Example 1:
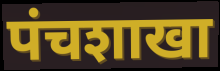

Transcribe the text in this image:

पंचशाखा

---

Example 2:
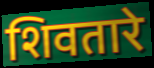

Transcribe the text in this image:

शिवतारे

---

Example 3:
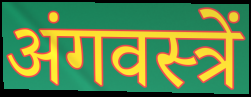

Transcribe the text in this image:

अंगवस्त्रें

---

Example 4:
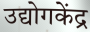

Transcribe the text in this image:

उद्योगकेंद्र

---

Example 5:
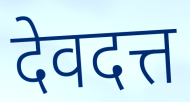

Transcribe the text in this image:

देवदत्त